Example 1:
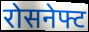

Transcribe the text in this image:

रोसनेफ्ट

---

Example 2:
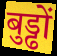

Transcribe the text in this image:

बुड्ढों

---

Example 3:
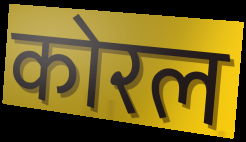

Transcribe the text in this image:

कोरल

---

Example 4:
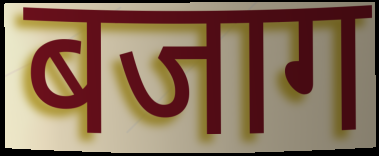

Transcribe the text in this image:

बजाग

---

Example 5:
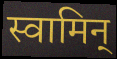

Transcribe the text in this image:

स्वामिन्